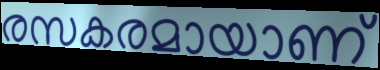
രസകരമായാണ്